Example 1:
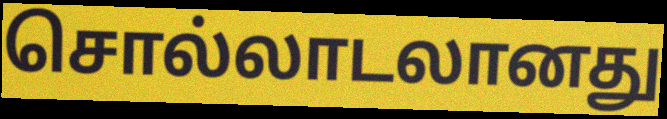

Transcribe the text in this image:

சொல்லாடலானது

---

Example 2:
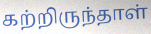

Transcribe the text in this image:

கற்றிருந்தாள்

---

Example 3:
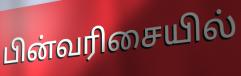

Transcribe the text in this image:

பின்வரிசையில்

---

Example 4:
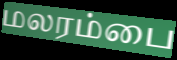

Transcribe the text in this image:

மலரம்பை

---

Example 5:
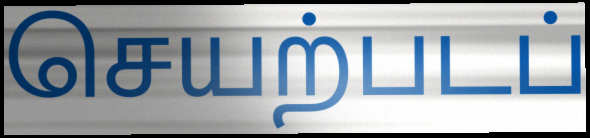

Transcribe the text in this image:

செயற்படப்